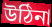
উঠিনা